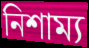
নিশাম্য